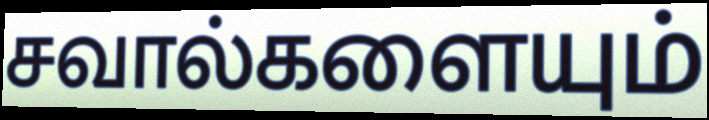
சவால்களையும்